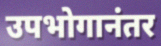
उपभोगानंतर